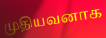
முதியவனாக